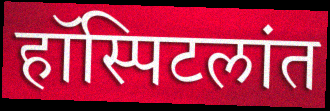
हॉस्पिटलांत